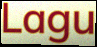
Lagu